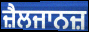
ਜ਼ੈਲਜਾਨਜ਼